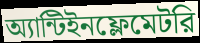
অ্যান্টিইনফ্লেমেটরি